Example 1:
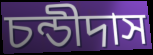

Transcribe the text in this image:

চন্ডীদাস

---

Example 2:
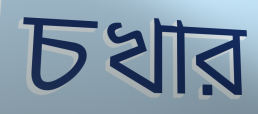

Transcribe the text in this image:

চখার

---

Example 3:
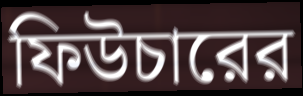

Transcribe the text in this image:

ফিউচারের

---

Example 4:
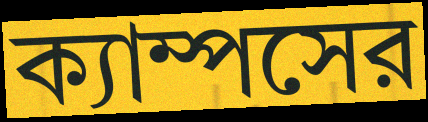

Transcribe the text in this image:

ক্যাম্পসের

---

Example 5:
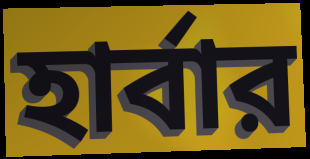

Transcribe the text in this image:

হার্বার